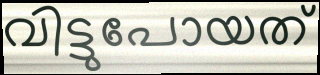
വിട്ടുപോയത്